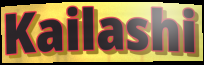
Kailashi